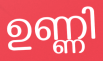
ഉണ്ണി